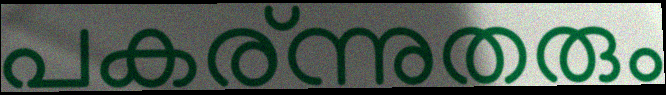
പകര്ന്നുതരും